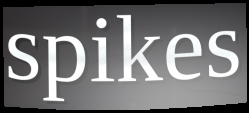
spikes